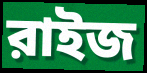
রাইজ